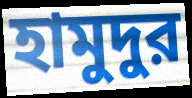
হামুদুর